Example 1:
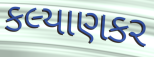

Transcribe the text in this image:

કલ્યાણકર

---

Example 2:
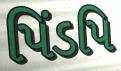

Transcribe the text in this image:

પિંડપિ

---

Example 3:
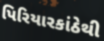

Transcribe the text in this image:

પિરિયારકાંઠેથી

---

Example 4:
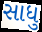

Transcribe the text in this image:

સાધુ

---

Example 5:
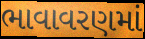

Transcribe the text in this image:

ભાવાવરણમાં